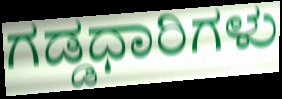
ಗಡ್ಡಧಾರಿಗಳು